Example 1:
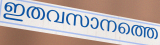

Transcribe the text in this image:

ഇതവസാനത്തെ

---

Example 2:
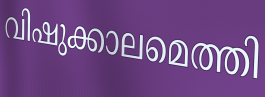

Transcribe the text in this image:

വിഷുക്കാലമെത്തി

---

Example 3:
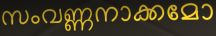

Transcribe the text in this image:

സംവണ്ണനാക്കമോ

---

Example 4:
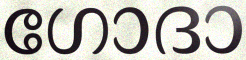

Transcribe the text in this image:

ഗോദാ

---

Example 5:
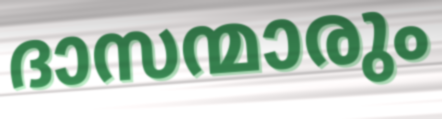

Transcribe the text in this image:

ദാസന്മാരും